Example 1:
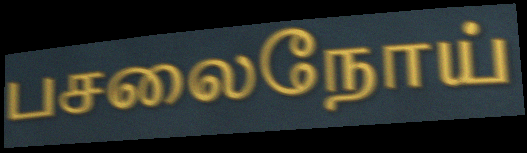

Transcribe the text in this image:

பசலைநோய்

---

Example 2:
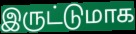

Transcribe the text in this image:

இருட்டுமாக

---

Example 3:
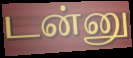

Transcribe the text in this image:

டன்னு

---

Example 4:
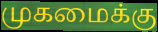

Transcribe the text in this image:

முகமைக்கு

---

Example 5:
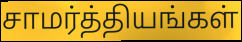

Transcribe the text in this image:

சாமர்த்தியங்கள்